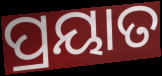
ପ୍ରୟାତ